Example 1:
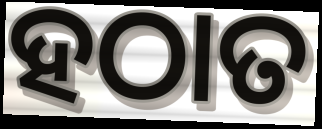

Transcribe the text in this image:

ହଠାତ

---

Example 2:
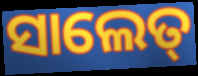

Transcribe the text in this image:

ସାଲେତ୍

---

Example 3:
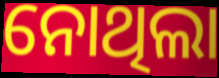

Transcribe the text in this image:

ନୋଥିଲା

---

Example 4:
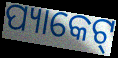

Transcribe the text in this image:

ପ୍ୟାକେଟ୍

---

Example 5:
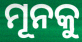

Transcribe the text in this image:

ମୂନକୁ